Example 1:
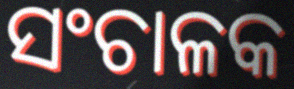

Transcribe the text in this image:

ସଂଚାଳକ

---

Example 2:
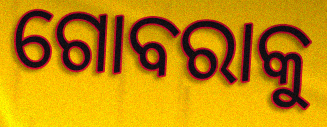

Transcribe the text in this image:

ଗୋବରାକୁ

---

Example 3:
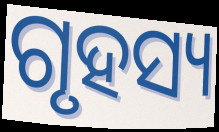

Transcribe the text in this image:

ଗୃହସ୍ୟ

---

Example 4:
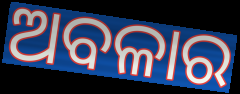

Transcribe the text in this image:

ଅବଳାର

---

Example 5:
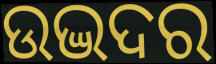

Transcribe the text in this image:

ଉଦ୍ଭଦର